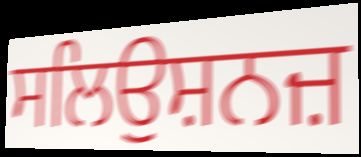
ਸਲਿਉਸ਼ਨਜ਼